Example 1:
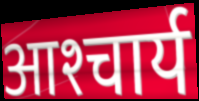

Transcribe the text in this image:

आश्चार्य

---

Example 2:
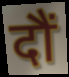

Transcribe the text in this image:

दौं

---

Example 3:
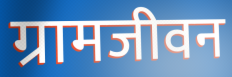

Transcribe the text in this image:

ग्रामजीवन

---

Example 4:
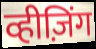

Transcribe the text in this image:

व्हीज़िंग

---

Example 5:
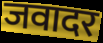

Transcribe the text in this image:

जवादर